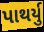
પાથર્યુ